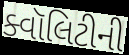
ક્વૉલિટીની